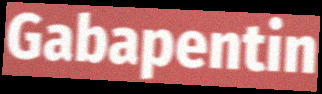
Gabapentin